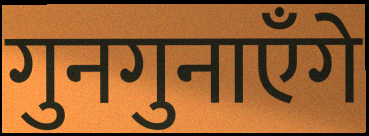
गुनगुनाएँगे